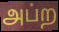
அப்ற